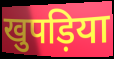
खुपड़िया